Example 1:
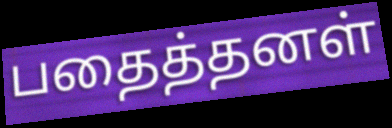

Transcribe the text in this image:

பதைத்தனள்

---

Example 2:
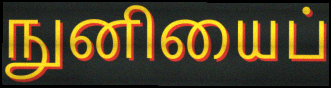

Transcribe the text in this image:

நுனியைப்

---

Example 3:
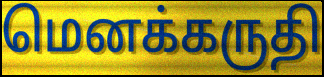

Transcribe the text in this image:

மெனக்கருதி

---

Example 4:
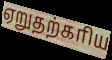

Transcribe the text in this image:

ஏறுதற்கரிய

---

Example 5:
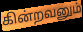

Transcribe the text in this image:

கின்றவனும்